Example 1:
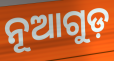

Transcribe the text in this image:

ନୂଆଗୁଡ଼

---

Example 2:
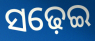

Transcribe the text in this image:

ସଢ଼େଇ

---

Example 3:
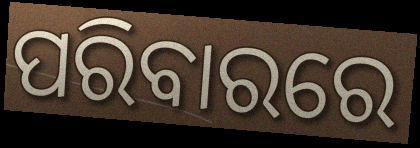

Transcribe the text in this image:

ପରିବାରରେ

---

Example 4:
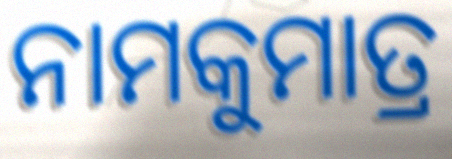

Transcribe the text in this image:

ନାମକୁମାତ୍ର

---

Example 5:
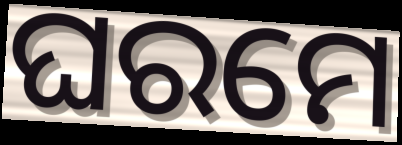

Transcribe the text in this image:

ଘରମେ